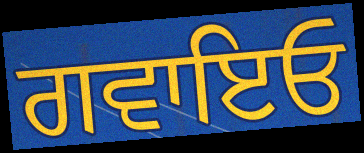
ਗਵਾਇਓ